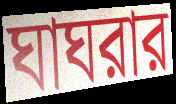
ঘাঘরার